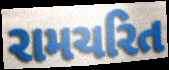
રામચરિત